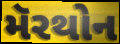
મૅરથોન